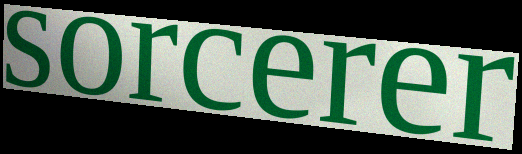
sorcerer